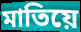
মাতিয়ে